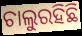
ଚାଲୁରହିଛି